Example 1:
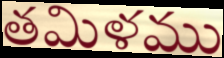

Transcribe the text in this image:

తమిళము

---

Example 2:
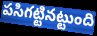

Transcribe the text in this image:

పసిగట్టినట్టుంది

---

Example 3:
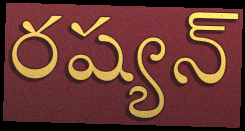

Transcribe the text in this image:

రష్యన్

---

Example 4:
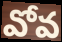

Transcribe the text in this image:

వోవ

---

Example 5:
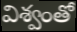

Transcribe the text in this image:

విశ్వంతో